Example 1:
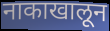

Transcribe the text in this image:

नाकाखालून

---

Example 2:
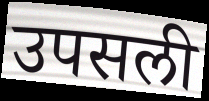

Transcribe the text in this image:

उपसली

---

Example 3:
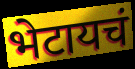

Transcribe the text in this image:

भेटायचं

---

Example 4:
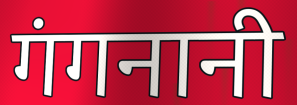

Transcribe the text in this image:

गंगनानी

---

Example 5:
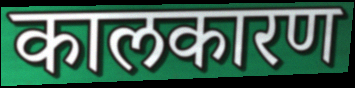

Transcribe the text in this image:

कालकारण